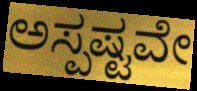
ಅಸ್ಪಷ್ಟವೇ